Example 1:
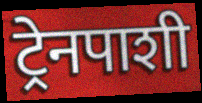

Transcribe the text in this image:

ट्रेनपाशी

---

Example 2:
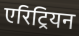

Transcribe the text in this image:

एरिट्रियन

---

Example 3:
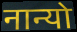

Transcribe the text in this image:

नान्यो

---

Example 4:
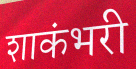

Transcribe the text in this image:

शाकंभरी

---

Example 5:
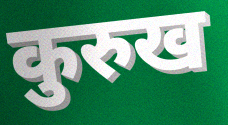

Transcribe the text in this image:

कुरुख